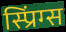
स्प्रिंग्स